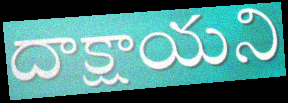
దాక్షాయని